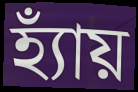
হ্যাঁয়